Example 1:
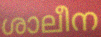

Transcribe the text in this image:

ശാലീന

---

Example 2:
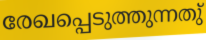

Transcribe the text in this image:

രേഖപ്പെടുത്തുന്നതു്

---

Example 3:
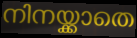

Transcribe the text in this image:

നിനയ്ക്കാതെ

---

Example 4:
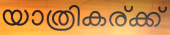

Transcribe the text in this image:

യാത്രികര്ക്ക്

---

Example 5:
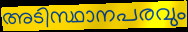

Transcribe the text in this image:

അടിസ്ഥാനപരവും